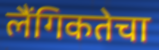
लैंगिकतेचा